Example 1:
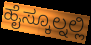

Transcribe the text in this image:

ಹೈಸ್ಕೂಲ್ನಲ್ಲಿ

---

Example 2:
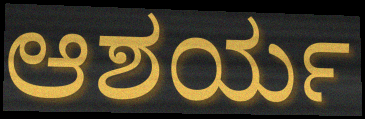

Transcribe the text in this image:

ಆಶರ್ಯ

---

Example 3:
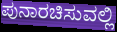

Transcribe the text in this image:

ಪುನಾರಚಿಸುವಲ್ಲಿ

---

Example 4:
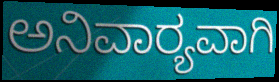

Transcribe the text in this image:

ಅನಿವಾರ‍್ಯವಾಗಿ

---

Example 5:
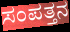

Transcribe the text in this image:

ಸಂಪತ್ತನ